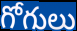
గోగులు